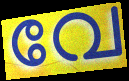
വേ